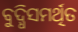
ବୁଦ୍ଧିସମର୍ଥିତ